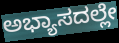
ಅಭ್ಯಾಸದಲ್ಲೇ